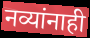
नव्यांनाही